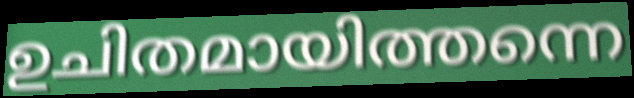
ഉചിതമായിത്തന്നെ